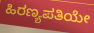
ಹಿರಣ್ಯಪತಿಯೇ